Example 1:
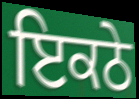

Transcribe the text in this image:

ਇਕਠੇ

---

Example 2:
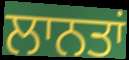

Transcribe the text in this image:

ਲਾਨਤਾਂ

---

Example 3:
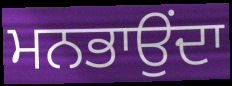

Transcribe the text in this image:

ਮਨਭਾਉਂਦਾ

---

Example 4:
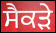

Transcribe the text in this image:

ਸੈਕੜੇ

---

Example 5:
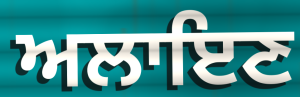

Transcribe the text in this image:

ਅਲਾਇਣ